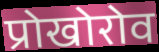
प्रोखोरोव